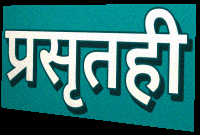
प्रसृतही